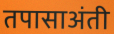
तपासाअंती